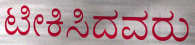
ಟೀಕಿಸಿದವರು